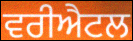
ਵਰੀਐਟਲ